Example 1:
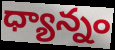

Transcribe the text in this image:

ధ్యాన్నం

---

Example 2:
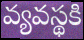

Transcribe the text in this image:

వ్యవస్థకి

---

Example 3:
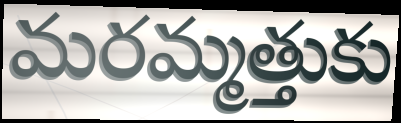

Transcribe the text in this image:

మరమ్మత్తుకు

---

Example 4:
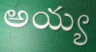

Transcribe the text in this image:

అయ్య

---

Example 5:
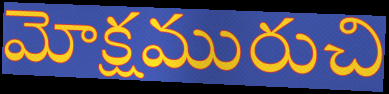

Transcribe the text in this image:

మోక్షమురుచి